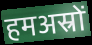
हमअस्रों